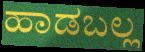
ಹಾಡಬಲ್ಲ